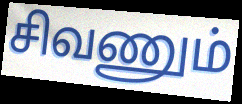
சிவணும்